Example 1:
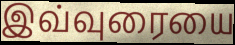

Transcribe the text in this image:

இவ்வுரையை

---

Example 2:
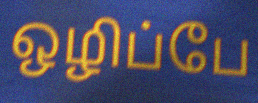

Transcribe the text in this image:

ஒழிப்பே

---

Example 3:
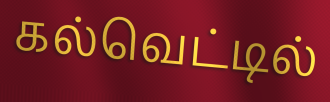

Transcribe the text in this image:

கல்வெட்டில்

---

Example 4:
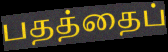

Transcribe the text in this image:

பதத்தைப்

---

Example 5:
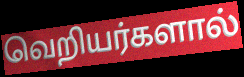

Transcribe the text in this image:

வெறியர்களால்